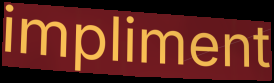
impliment